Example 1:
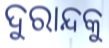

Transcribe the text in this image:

ଦୁରାନ୍ଦକୁ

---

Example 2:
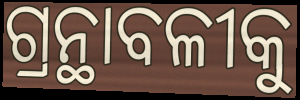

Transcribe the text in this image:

ଗ୍ରନ୍ଥାବଳୀକୁ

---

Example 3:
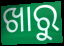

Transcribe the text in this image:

ଖାରୁ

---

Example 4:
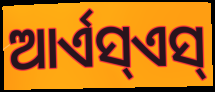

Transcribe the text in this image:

ଆର୍ଏସ୍ଏସ୍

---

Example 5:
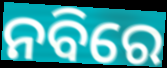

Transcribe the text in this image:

ନବିରେ